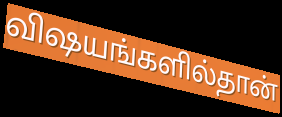
விஷயங்களில்தான்